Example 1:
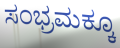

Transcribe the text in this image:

ಸಂಭ್ರಮಕ್ಕೂ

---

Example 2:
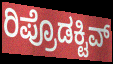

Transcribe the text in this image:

ರಿಪ್ರೊಡಕ್ಟಿವ್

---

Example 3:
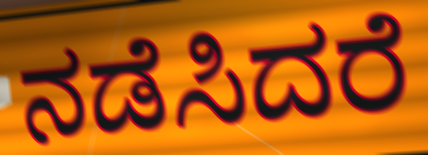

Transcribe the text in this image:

ನಡೆಸಿದರೆ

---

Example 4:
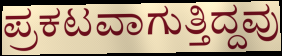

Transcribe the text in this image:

ಪ್ರಕಟವಾಗುತ್ತಿದ್ದವು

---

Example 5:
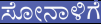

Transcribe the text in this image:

ಸೋನಾಳಿಗೆ